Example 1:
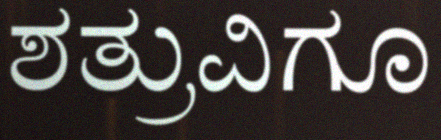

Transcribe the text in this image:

ಶತ್ರುವಿಗೂ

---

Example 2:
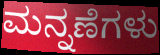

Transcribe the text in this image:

ಮನ್ನಣೆಗಳು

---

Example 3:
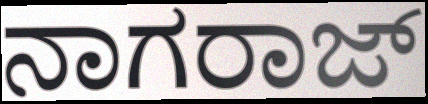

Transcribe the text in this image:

ನಾಗರಾಜ್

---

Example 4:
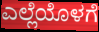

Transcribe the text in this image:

ಎಲ್ಲೆಯೊಳಗೆ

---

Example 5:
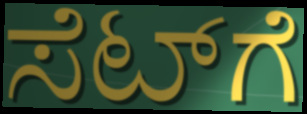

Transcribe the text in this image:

ಸೆಟ್‌ಗೆ